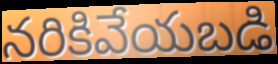
నరికివేయబడి